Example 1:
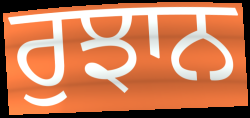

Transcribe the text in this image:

ਰੁਝਾਨ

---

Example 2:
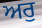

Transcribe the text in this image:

ਅਰੁ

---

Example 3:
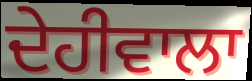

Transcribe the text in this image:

ਦੇਹੀਵਾਲਾ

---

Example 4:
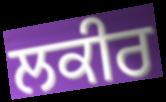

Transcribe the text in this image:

ਲਕੀਰ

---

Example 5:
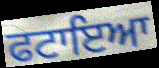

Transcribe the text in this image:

ਫਟਾਇਆ